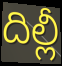
దిల్లీ